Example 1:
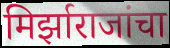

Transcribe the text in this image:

मिर्झाराजांचा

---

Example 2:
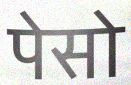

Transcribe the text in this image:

पेसो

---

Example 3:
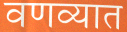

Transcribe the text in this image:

वणव्यात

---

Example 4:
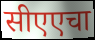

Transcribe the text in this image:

सीएएचा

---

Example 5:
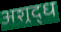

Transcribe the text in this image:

अश्रद्ध